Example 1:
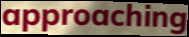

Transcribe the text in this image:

approaching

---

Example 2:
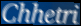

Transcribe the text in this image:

Chhetri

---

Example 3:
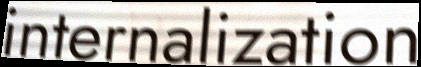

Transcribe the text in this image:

internalization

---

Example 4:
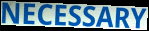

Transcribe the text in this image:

NECESSARY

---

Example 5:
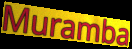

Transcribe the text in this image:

Muramba